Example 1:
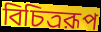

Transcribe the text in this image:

বিচিত্ররূপ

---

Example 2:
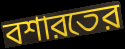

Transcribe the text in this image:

বশারতের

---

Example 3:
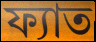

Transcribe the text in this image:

ফ্যাত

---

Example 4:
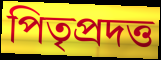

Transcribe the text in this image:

পিতৃপ্রদত্ত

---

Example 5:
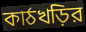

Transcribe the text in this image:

কাঠখড়ির